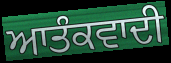
ਆਤੰਕਵਾਦੀ